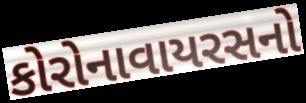
કોરોનાવાયરસનો